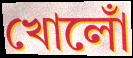
খোলোঁ